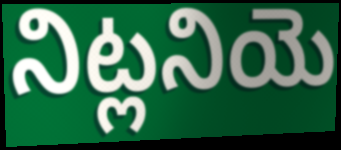
నిట్లనియె